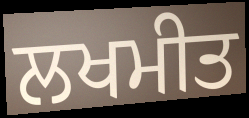
ਲਖਮੀਤ